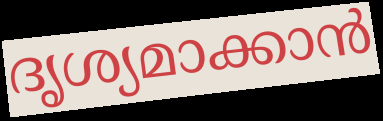
ദൃശ്യമാക്കാൻ